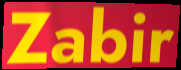
Zabir